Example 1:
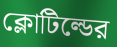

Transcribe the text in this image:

ক্লোটিল্ডের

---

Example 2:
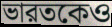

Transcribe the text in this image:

ভারতকেও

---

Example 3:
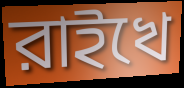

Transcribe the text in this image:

রাইখে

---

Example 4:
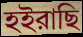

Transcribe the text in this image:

হইরাছি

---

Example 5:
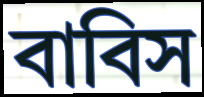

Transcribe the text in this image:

বাবিস